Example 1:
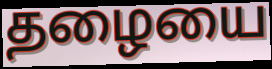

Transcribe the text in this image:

தழையை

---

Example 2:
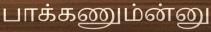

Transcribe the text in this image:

பாக்கணும்ன்னு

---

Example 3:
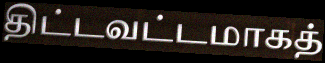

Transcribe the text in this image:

திட்டவட்டமாகத்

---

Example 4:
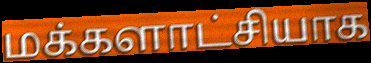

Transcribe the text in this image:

மக்களாட்சியாக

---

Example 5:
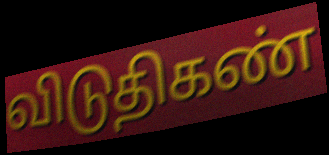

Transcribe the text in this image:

விடுதிகண்